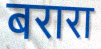
बरारा